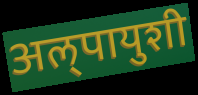
अल्पायुशी